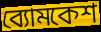
ব্যোমকেশ